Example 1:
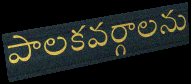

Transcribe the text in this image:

పాలకవర్గాలను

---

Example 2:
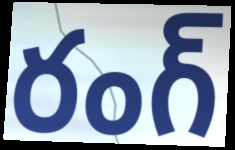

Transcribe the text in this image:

రంగ్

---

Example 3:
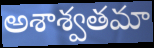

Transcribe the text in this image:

అశాశ్వతమా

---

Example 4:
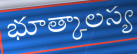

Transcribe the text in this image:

భూత్కాలస్య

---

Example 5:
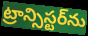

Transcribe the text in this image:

ట్రాన్సిస్టర్‌ను